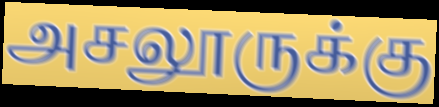
அசலூருக்கு